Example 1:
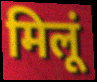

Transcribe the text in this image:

मिलूं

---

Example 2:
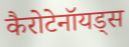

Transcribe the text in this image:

कैरोटेनॉयड्स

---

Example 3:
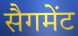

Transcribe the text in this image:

सैगमेंट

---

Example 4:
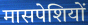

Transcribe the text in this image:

मासपेशियों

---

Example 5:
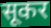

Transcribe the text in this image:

सूकर